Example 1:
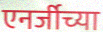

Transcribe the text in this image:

एनर्जीच्या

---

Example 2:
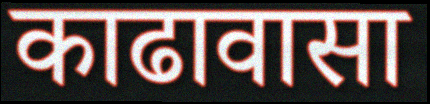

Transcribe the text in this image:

काढावासा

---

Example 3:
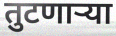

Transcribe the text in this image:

तुटणार्‍या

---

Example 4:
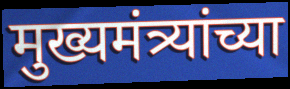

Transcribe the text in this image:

मुख्यमंत्र्यांच्या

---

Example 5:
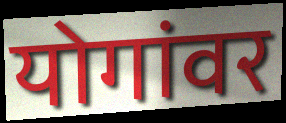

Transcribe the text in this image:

योगांवर